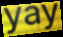
yay